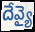
దేవ్యై